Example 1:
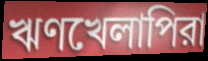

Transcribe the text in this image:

ঋণখেলাপিরা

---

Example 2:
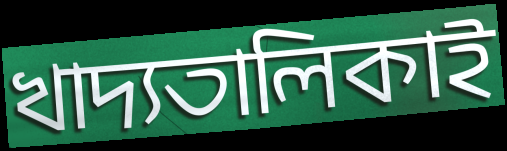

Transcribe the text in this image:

খাদ্যতালিকাই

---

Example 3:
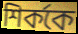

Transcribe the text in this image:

শির্ককে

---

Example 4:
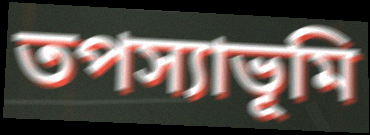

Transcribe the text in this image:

তপস্যাভূমি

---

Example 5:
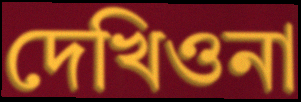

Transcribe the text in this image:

দেখিওনা